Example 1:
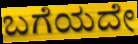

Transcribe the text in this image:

ಬಗೆಯದೇ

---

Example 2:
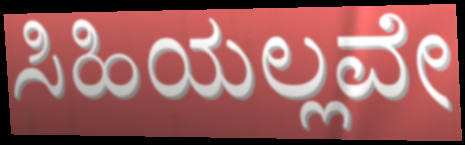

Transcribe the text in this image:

ಸಿಹಿಯಲ್ಲವೇ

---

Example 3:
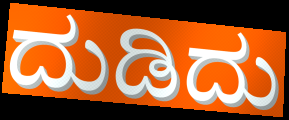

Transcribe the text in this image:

ದುಡಿದು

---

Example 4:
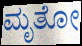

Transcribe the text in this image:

ಮೃತೋ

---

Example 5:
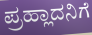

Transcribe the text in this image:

ಪ್ರಹ್ಲಾದನಿಗೆ